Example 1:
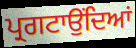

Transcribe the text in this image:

ਪ੍ਰਗਟਾਉਂਦਿਆਂ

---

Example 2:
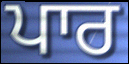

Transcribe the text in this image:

ਪਾਰ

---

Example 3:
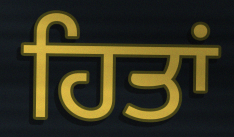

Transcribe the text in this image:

ਹਿਤਾਂ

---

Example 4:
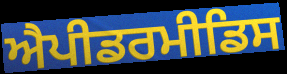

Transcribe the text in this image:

ਐਪੀਡਰਮੀਡਿਸ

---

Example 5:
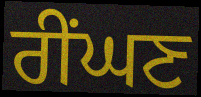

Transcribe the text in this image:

ਰੀਂਘਣ